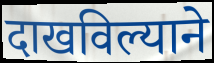
दाखविल्याने